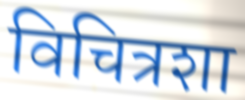
विचित्रशा